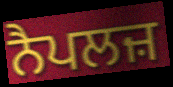
ਨੈਪਲਜ਼